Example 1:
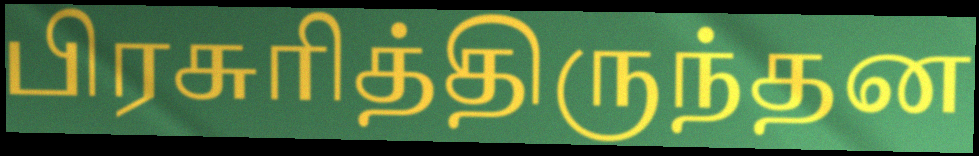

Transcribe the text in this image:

பிரசுரித்திருந்தன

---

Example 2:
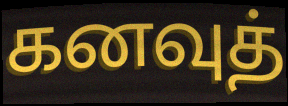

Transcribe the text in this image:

கனவுத்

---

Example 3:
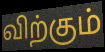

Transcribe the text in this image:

விற்கும்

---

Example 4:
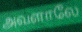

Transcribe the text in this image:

அவளாலே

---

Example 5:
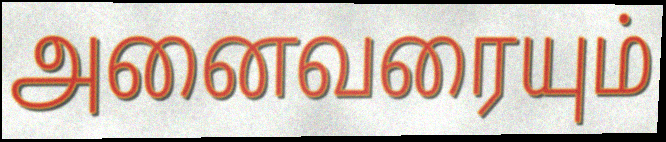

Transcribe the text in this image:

அனைவரையும்